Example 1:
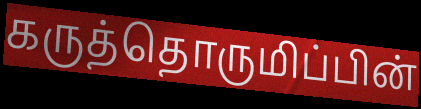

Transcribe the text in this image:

கருத்தொருமிப்பின்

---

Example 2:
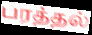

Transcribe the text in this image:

பரத்தல்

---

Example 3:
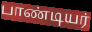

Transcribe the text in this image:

பாண்டியர்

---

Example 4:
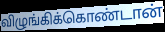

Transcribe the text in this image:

விழுங்கிக்கொண்டான்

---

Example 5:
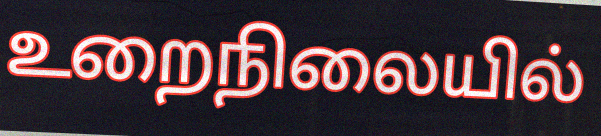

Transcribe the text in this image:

உறைநிலையில்